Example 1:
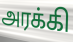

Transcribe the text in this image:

அரக்கி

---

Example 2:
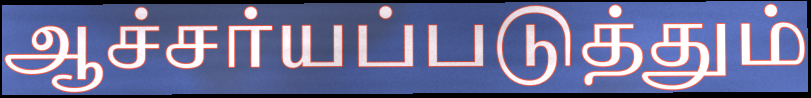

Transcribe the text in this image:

ஆச்சர்யப்படுத்தும்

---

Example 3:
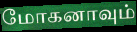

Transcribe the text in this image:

மோகனாவும்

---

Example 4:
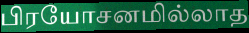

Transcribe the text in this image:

பிரயோசனமில்லாத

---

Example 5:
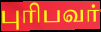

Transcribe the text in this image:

புரிபவர்